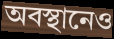
অবস্থানেও